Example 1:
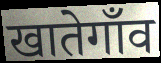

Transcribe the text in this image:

खातेगाँव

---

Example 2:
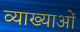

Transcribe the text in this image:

व्याख्याओं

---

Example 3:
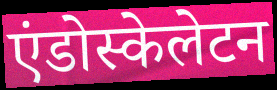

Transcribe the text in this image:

एंडोस्केलेटन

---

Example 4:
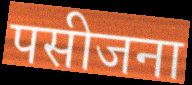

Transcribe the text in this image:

पसीजना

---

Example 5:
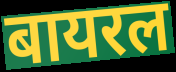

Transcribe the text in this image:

बायरल